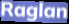
Raglan